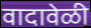
वादावेळी